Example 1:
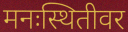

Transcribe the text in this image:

मनःस्थितीवर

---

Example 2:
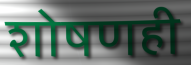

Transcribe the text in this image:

शोषणही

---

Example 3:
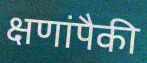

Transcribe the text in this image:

क्षणांपैकी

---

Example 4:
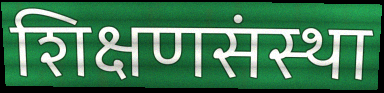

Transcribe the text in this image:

शिक्षणसंस्था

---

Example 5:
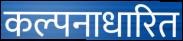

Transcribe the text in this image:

कल्पनाधारित